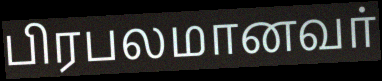
பிரபலமானவர்